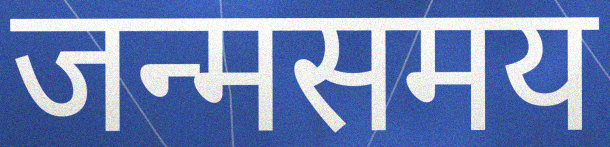
जन्मसमय